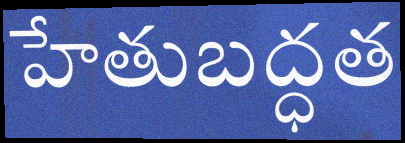
హేతుబద్ధత